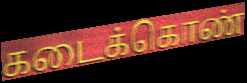
கடைக்கொண்